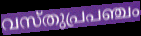
വസ്തുപ്രപഞ്ചം